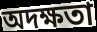
অদক্ষতা